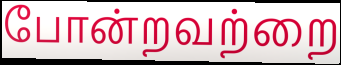
போன்றவற்றை